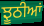
ਝੂਠੀਆਂ